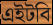
এইটবি